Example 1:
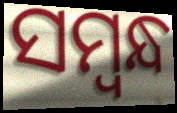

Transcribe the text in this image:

ସମ୍ବନ୍ଧ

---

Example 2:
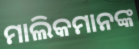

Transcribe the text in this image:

ମାଲିକମାନଙ୍କ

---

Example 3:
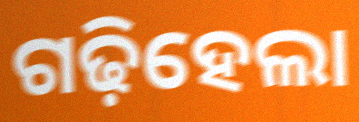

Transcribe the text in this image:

ଗଢ଼ିହେଲା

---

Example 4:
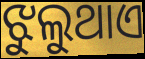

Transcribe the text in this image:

ଝୁଲୁଥାଏ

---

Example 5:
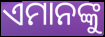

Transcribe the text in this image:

ଏମାନଙ୍କୁ